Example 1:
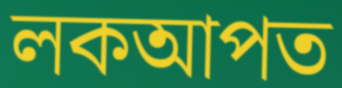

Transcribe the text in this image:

লকআপত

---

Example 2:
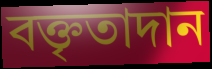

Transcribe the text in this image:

বক্তৃতাদান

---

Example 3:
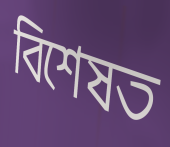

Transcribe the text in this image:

বিশেষত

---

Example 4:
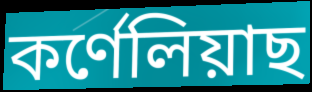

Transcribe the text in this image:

কৰ্ণেলিয়াছ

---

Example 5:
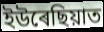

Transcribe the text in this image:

ইউৰেছিয়াত